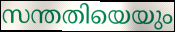
സന്തതിയെയും